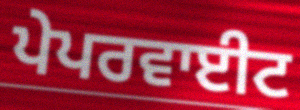
ਪੇਪਰਵਾਈਟ